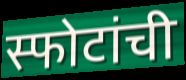
स्फोटांची